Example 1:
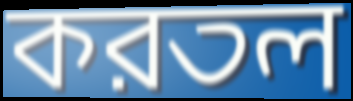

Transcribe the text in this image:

করতল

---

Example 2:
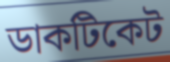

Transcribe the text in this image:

ডাকটিকেট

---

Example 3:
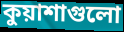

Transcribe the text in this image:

কুয়াশাগুলো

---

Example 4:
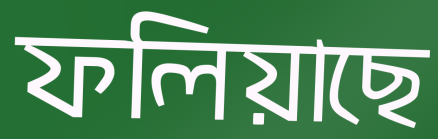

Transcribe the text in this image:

ফলিয়াছে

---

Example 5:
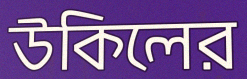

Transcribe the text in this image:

উকিলের